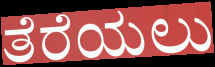
ತೆರೆಯಲು